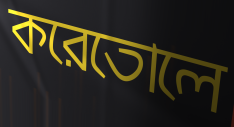
করেতোলে